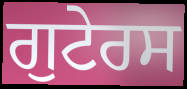
ਗੁਟੇਰਸ